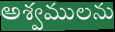
అశ్వములను